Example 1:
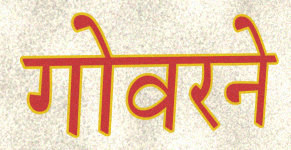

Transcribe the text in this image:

गोवरने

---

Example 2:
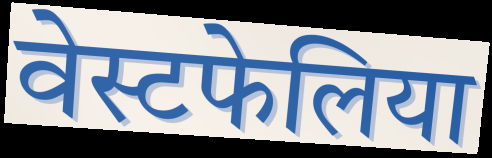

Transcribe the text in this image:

वेस्टफेलिया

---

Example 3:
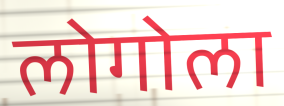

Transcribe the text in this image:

लोगोला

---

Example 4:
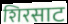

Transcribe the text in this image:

शिरसाट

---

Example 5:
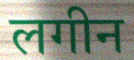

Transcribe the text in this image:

लगीन